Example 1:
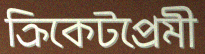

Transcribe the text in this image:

ক্রিকেটপ্রেমী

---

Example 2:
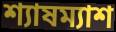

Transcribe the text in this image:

শ্যাষম্যাশ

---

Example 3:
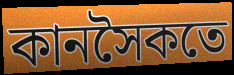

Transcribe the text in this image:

কানসৈকতে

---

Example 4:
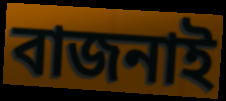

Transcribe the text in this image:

বাজনাই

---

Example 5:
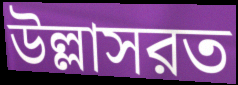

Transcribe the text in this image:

উল্লাসরত